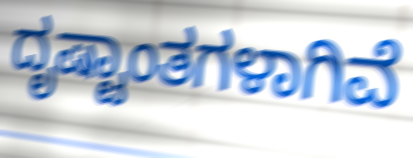
ದೃಷ್ಟಾಂತಗಳಾಗಿವೆ